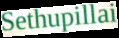
Sethupillai